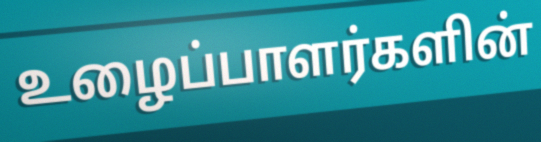
உழைப்பாளர்களின்